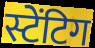
स्टेंटिग